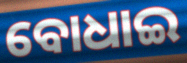
ବୋଧାଇ